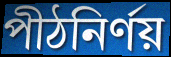
পীঠনির্ণয়